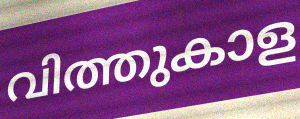
വിത്തുകാള